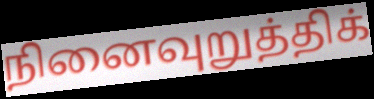
நினைவுறுத்திக்